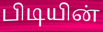
பிடியின்